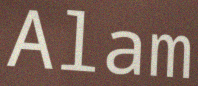
Alam